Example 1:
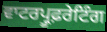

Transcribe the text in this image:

ਵਾਟਰਪ੍ਰੂਫ਼ਰੇਟਿੰਗ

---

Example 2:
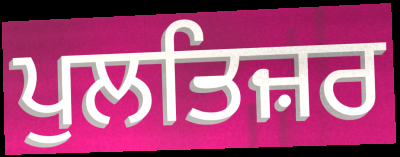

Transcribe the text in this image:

ਪੁਲਤਿਜ਼ਰ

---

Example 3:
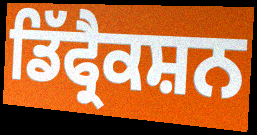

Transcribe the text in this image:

ਡਿੱਫ੍ਰੈਕਸ਼ਨ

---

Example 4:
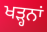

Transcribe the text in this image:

ਖੜ੍ਹਨਾਂ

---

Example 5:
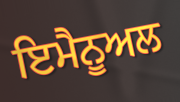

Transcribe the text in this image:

ਇਮੈਨੂਅਲ